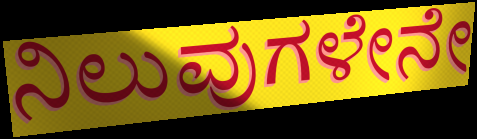
ನಿಲುವುಗಳೇನೇ